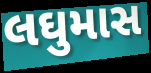
લઘુમાસ